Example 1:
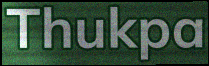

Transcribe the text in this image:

Thukpa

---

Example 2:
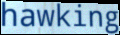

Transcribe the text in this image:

hawking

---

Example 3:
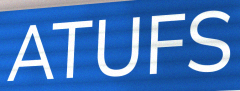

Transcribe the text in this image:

ATUFS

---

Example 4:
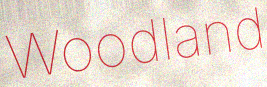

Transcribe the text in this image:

Woodland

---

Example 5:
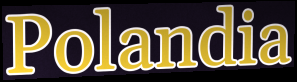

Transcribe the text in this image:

Polandia